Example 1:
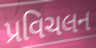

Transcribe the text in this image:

પ્રવિચલન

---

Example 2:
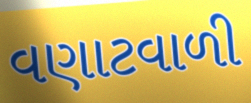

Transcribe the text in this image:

વણાટવાળી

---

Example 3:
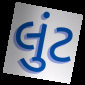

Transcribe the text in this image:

લુંટ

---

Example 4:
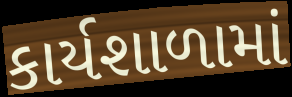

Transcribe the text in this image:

કાર્યશાળામાં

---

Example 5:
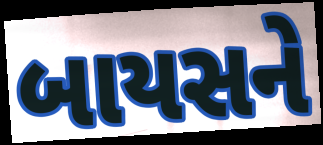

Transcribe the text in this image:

બાયસને